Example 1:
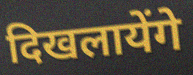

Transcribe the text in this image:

दिखलायेंगे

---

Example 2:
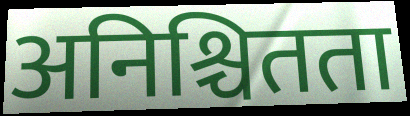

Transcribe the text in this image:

अनिश्चितता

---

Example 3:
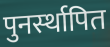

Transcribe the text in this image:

पुनर्स्‍थापित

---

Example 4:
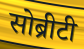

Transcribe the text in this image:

सोब्रीटी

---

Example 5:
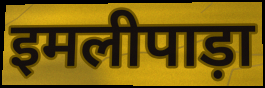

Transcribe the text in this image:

इमलीपाड़ा